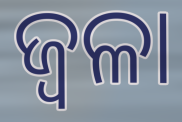
ଜ୍ଵଳା